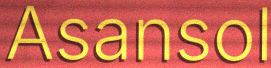
Asansol